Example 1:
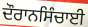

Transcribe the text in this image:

ਦੌਰਾਨਸਿੰਚਾਈ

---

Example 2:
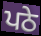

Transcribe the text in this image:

ਪਠੇ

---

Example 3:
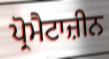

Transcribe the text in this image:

ਪ੍ਰੋਮੈਟਾਜ਼ੀਨ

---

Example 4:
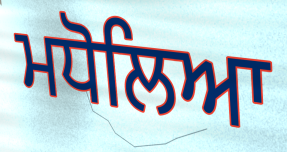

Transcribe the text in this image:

ਮਧੋਲਿਆ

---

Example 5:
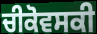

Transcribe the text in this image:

ਚੀਕੋਵਸਕੀ